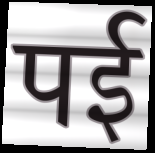
पई